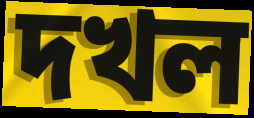
দখল